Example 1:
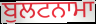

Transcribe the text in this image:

ਬੁਲਟਨਾਮਾ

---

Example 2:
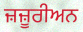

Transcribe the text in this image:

ਜ਼ਜ਼ੂਰੀਅਨ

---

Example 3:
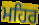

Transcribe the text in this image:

ਮਹਿਰ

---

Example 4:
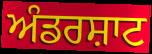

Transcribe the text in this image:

ਅੰਡਰਸ਼ਾਟ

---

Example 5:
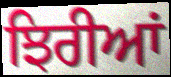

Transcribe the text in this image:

ਝਿਰੀਆਂ